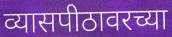
व्यासपीठावरच्या